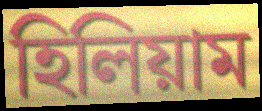
হিলিয়াম